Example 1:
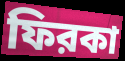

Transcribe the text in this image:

ফিরকা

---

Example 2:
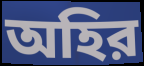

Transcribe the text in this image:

অহির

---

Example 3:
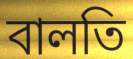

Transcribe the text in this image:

বালতি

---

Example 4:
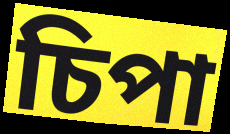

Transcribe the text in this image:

চিপা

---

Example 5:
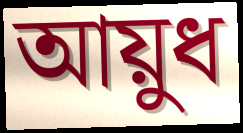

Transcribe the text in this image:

আয়ুধ